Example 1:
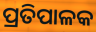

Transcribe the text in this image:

ପ୍ରତିପାଳକ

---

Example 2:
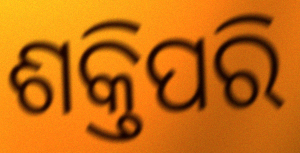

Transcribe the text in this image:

ଶକ୍ତିପରି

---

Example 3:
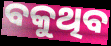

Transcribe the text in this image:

ବକୁଥିବ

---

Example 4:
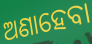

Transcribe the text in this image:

ଅଣାହେବା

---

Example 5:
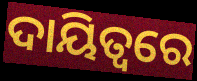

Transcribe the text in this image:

ଦାୟିତ୍ବରେ